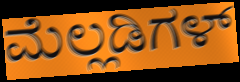
ಮೆಲ್ಲಡಿಗಳ್